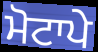
ਮੋਟਾਪੇ